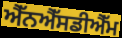
ਐੱਨਐੱਸਡੀਐੱਮ